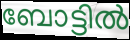
ബോട്ടിൽ